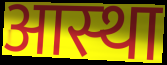
आस्‍था